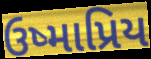
ઉષ્માપ્રિય